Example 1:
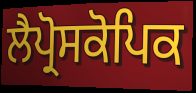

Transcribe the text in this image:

ਲੈਪ੍ਰੋਸਕੋਪਿਕ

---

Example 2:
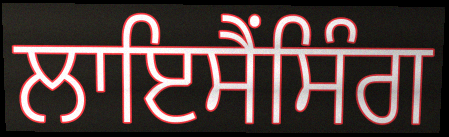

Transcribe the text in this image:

ਲਾਇਸੈਂਸਿੰਗ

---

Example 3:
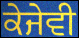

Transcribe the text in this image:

ਕੇਜੇਵੀ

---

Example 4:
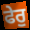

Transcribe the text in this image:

ਫੇਰੁ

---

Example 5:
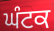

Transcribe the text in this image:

ਘੰਟਕ